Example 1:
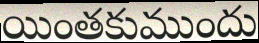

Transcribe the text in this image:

యింతకుముందు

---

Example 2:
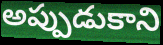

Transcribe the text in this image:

అప్పుడుకాని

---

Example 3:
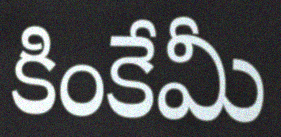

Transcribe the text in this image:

కింకేమీ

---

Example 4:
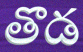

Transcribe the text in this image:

తొడ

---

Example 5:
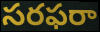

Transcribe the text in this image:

సరఫరా